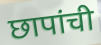
छापांची